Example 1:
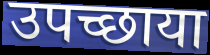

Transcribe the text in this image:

उपच्छाया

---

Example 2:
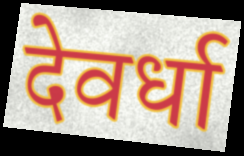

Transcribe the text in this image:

देवर्धा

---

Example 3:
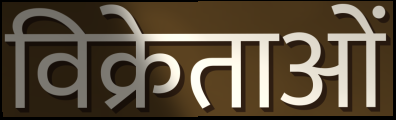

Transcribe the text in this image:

विक्रेताओं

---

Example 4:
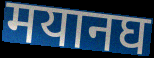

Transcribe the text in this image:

मयानघ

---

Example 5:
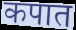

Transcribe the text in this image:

कपात